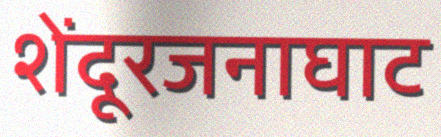
शेंदूरजनाघाट